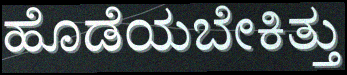
ಹೊಡೆಯಬೇಕಿತ್ತು